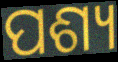
ପଶ୍ୟ